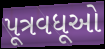
પૂત્રવધૂઓ